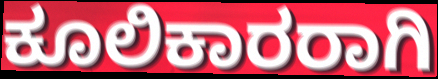
ಕೂಲಿಕಾರರಾಗಿ